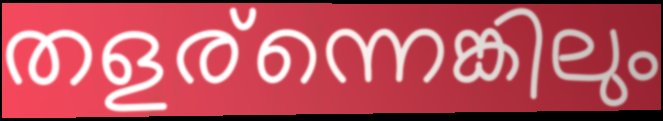
തളര്ന്നെങ്കിലും